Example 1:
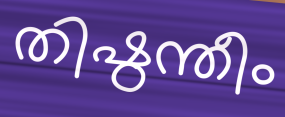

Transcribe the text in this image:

തിഷ്ഠന്തീം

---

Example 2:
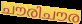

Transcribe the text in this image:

ചൗരിചൗര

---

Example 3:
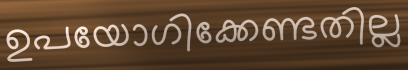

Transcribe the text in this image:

ഉപയോഗിക്കേണ്ടതില്ല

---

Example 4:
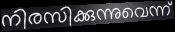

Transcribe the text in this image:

നിരസിക്കുന്നുവെന്ന്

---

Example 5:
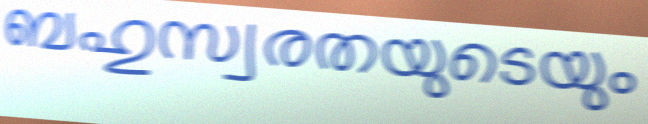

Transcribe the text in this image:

ബഹുസ്വരതയുടെയും